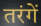
तरंगें